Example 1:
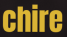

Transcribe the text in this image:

chire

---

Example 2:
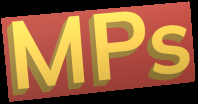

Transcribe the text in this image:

MPs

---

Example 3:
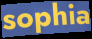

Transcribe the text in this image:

sophia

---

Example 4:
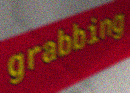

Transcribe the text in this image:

grabbing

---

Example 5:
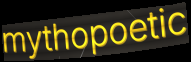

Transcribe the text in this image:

mythopoetic